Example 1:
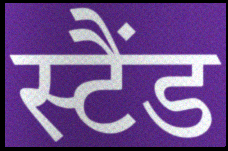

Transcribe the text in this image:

स्टैंड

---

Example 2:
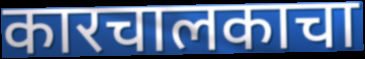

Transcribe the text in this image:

कारचालकाचा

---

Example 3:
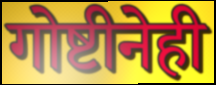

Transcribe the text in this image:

गोष्टीनेही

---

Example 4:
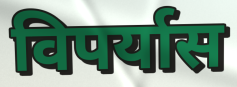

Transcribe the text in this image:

विपर्यास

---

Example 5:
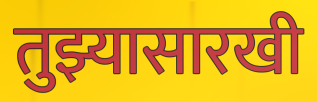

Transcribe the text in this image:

तुझ्यासारखी